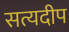
सत्यदीप